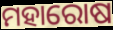
ମହାରୋଷ